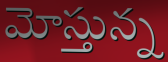
మోస్తున్న